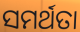
ସମର୍ଥତା